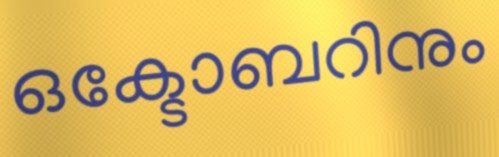
ഒക്ടോബറിനും